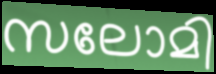
സലോമി